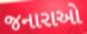
જનારાઓ